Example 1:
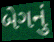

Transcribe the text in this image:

બેગનું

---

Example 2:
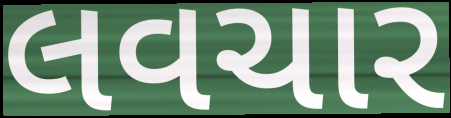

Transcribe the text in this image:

લવચાર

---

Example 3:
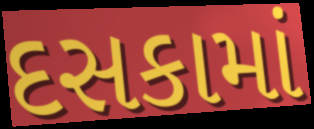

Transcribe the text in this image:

દસકામાં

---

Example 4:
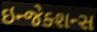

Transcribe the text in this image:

ઇન્જેક્શન્સ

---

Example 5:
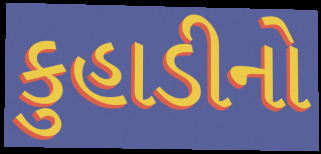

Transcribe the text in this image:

કુહાડીનો